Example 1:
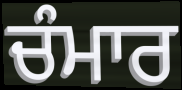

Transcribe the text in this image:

ਚੰਮਾਰ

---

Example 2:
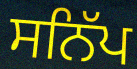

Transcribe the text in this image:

ਸਨਿੱਪ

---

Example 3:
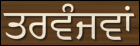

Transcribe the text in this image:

ਤਰਵੰਜਵਾਂ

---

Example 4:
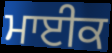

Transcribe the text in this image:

ਮਾਈਕ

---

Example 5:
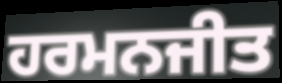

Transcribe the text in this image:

ਹਰਮਨਜੀਤ